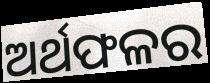
ଅର୍ଥଫଳର